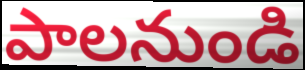
పాలనుండి